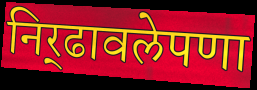
निर्ढावलेपणा